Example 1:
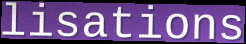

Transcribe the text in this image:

lisations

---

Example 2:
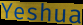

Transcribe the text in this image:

Yeshua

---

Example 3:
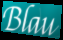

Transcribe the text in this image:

Blau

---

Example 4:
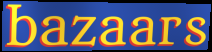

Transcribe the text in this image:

bazaars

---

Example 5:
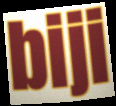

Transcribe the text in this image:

biji